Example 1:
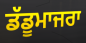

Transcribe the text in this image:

ਡੱਡੂਮਾਜਰਾ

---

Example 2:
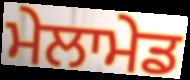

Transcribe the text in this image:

ਮੇਲਾਮੇਡ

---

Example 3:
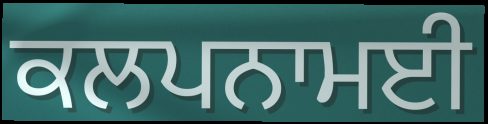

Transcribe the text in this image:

ਕਲਪਨਾਮਈ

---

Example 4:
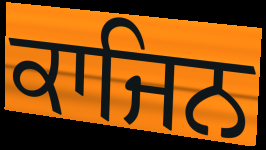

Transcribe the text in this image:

ਕਾਜਿਨ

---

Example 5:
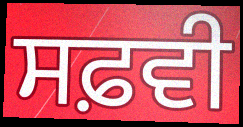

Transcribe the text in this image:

ਸਫ਼ਵੀ